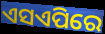
ଏସଏପିରେ